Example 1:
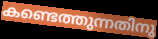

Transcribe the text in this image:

കണ്ടെത്തുന്നതിനു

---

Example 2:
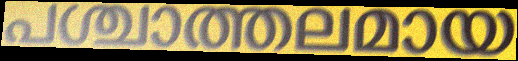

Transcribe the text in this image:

പശ്ചാത്തലമായ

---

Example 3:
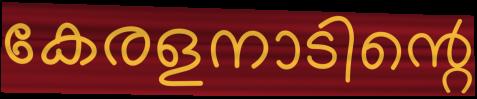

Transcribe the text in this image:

കേരളനാടിന്റെ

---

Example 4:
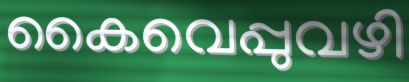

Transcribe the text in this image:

കൈവെപ്പുവഴി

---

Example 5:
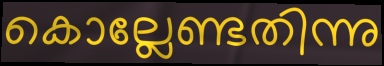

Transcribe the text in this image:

കൊല്ലേണ്ടതിന്നു